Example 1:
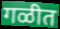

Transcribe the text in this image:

गळीत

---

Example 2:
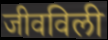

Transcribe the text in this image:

जीवविली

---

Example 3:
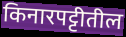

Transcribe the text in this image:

किनारपट्टीतील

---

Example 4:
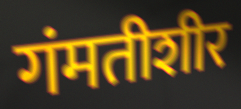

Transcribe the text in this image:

गंमतीशीर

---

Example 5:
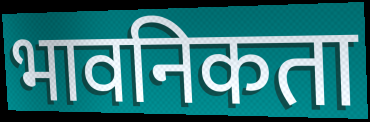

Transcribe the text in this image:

भावनिकता